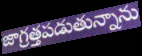
జాగ్రత్తపడుతున్నాను